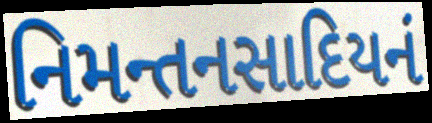
નિમન્તનસાદિયનં